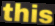
this